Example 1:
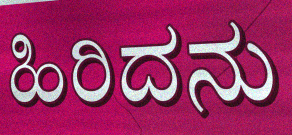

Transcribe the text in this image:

ಹಿರಿದನು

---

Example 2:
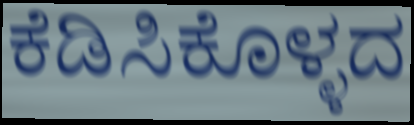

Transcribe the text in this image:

ಕೆಡಿಸಿಕೊಳ್ಳದ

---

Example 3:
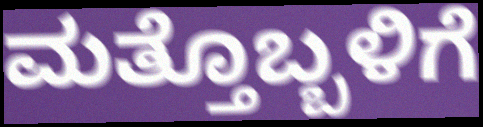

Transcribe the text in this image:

ಮತ್ತೊಬ್ಬಳಿಗೆ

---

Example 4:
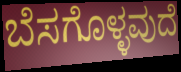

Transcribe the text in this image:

ಬೆಸಗೊಳ್ಳವುದೆ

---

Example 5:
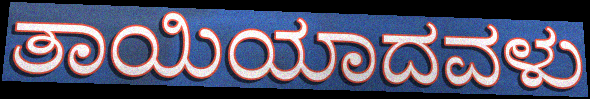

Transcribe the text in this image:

ತಾಯಿಯಾದವಳು